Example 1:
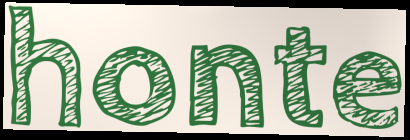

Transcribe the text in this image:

honte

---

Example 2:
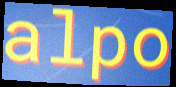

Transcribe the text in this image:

alpo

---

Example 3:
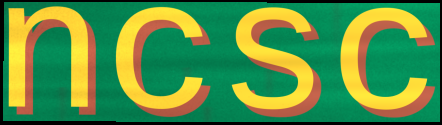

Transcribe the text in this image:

ncsc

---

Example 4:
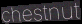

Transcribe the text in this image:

chestnut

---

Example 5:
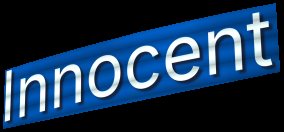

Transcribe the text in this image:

Innocent